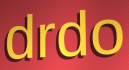
drdo